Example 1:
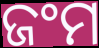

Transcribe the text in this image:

ଜଂମ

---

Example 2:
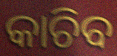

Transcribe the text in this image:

କାଚିବ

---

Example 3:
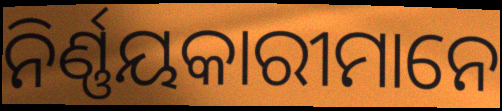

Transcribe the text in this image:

ନିର୍ଣ୍ଣୟକାରୀମାନେ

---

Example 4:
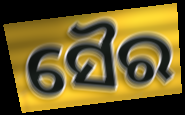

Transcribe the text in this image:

ସୈର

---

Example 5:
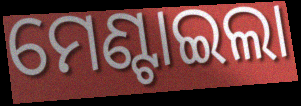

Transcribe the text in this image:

ମେଣ୍ଟାଇଲା